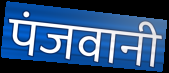
पंजवानी